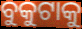
ବୁକୁଟାକୁ